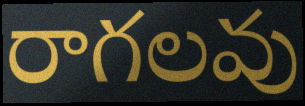
రాగలవు